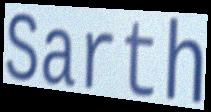
Sarth